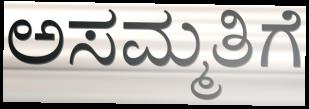
ಅಸಮ್ಮತಿಗೆ